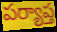
పర్యాప్త